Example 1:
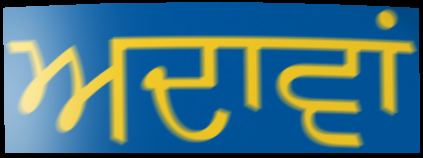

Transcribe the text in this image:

ਅਦਾਵਾਂ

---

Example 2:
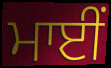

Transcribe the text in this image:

ਮਾਈਂ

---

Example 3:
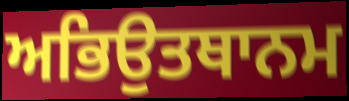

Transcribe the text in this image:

ਅਭਿਉਤਥਾਨਮ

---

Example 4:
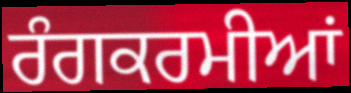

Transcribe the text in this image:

ਰੰਗਕਰਮੀਆਂ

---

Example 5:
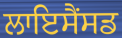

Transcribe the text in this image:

ਲਾਇਸੈਂਸਡ